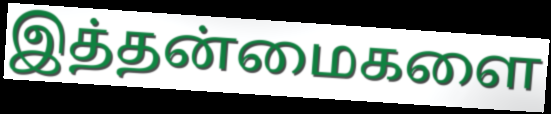
இத்தன்மைகளை